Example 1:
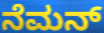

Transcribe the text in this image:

ನೆಮನ್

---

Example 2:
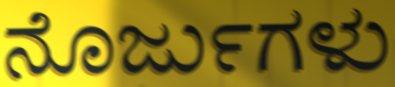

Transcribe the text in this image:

ನೊರ್ಜುಗಳು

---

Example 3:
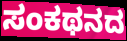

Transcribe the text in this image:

ಸಂಕಥನದ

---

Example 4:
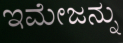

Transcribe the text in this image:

ಇಮೇಜನ್ನು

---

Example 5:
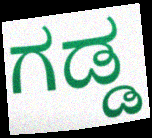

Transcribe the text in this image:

ಗಡ್ಡ